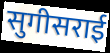
सुगीसराई